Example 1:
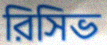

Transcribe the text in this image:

রিসিভ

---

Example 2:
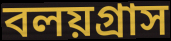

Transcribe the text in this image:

বলয়গ্রাস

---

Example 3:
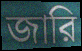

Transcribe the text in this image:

জারি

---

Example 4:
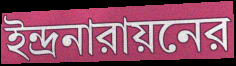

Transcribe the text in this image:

ইন্দ্রনারায়নের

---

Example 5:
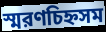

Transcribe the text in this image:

স্মরণচিহ্নসম